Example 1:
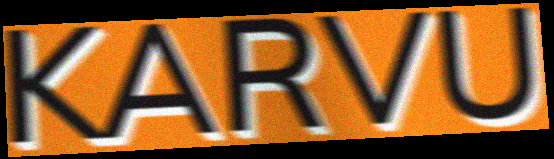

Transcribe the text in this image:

KARVU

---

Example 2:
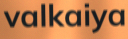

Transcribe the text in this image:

valkaiya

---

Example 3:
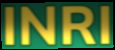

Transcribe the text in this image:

INRI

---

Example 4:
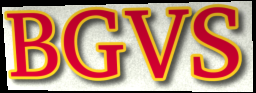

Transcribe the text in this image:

BGVS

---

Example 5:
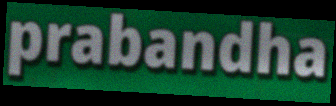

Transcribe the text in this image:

prabandha